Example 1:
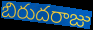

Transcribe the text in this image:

బిరుదరాజు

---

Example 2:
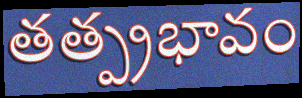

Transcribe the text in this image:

తత్ప్రభావం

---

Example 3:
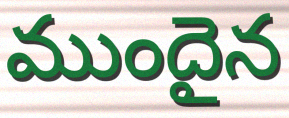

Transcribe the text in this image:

ముందైన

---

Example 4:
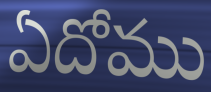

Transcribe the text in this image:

ఏదోము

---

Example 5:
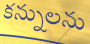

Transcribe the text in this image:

కన్నులను